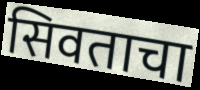
सिवताचा